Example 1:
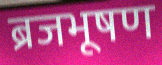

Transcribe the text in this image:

ब्रजभूषण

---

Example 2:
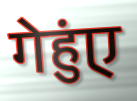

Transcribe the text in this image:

गेहुंए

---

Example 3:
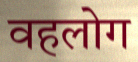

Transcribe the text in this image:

वहलोग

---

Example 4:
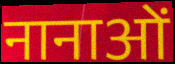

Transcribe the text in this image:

नानाओं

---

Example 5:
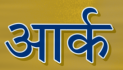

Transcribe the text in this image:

आर्क